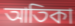
আতিকা